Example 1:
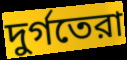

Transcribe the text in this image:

দুর্গতেরা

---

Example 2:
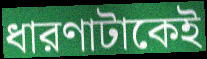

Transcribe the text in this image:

ধারণাটাকেই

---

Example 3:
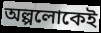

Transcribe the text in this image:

অল্পলোকেই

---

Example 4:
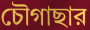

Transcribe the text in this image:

চৌগাছার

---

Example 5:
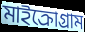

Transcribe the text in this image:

মাইক্রোগ্রাম